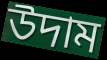
উদাম